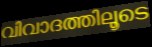
വിവാദത്തിലൂടെ